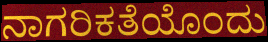
ನಾಗರಿಕತೆಯೊಂದು